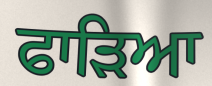
ਫਾੜਿਆ